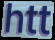
htt